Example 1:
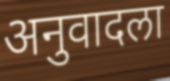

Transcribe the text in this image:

अनुवादला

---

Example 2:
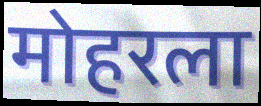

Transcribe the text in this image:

मोहरला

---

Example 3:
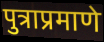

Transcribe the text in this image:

पुत्राप्रमाणे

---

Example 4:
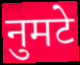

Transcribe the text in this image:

नुमटे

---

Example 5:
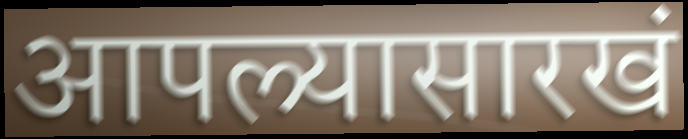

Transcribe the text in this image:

आपल्यासारखं